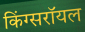
किंग्सरॉयल